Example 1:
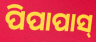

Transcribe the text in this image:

ପିପାପାସ୍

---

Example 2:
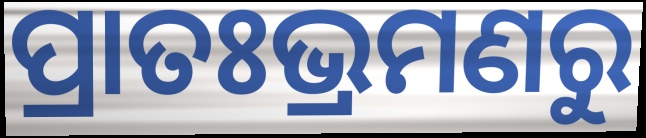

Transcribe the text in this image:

ପ୍ରାତଃଭ୍ରମଣରୁ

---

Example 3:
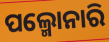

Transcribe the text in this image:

ପଲ୍ମୋନାରି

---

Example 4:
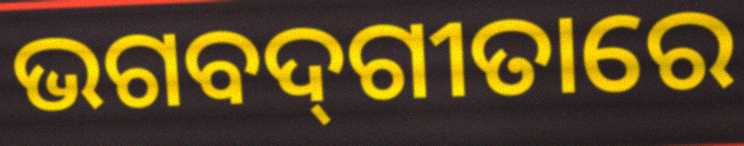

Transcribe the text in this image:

ଭଗବଦ୍‌ଗୀତାରେ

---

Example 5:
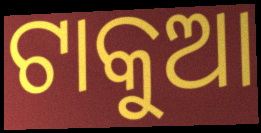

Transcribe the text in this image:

ଟାକୁଆ